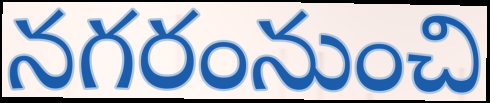
నగరంనుంచి